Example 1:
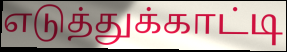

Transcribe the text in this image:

எடுத்துக்காட்டி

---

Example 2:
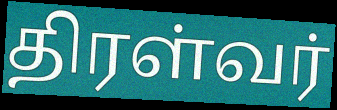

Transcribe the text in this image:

திரள்வர்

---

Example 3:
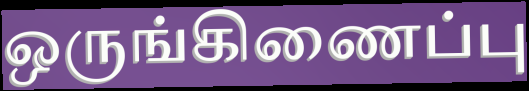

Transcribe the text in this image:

ஒருங்கிணைப்பு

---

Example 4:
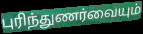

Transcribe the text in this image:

புரிந்துணர்வையும்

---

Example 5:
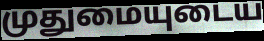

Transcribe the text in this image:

முதுமையுடைய